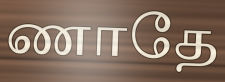
ணாதே